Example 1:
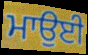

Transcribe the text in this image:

ਮਾਉਈ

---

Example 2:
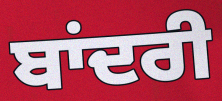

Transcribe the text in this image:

ਬਾਂਦਰੀ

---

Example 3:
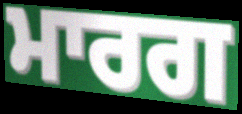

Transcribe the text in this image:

ਮਾਰਗ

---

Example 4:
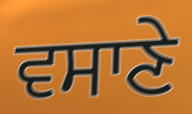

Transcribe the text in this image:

ਵਸਾਣੇ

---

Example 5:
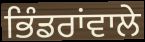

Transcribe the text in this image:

ਭਿੰਡਰਾਂਵਾਲੇ